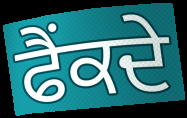
ਫੈਂਕਦੇ